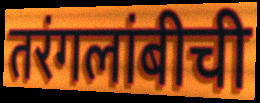
तरंगलांबीची